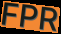
FPR